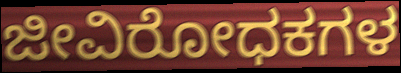
ಜೀವಿರೋಧಕಗಳ